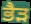
ਭੈੜ